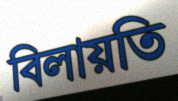
বিলায়তি